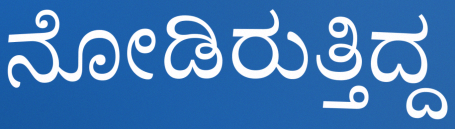
ನೋಡಿರುತ್ತಿದ್ದ